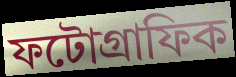
ফটোগ্রাফিক